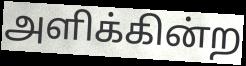
அளிக்கின்ற